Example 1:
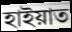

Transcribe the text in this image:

হাইয়াত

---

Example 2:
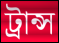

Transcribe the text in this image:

ট্রান্স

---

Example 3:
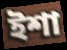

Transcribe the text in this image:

ইশা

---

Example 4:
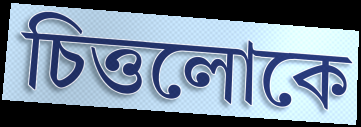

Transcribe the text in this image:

চিত্তলোকে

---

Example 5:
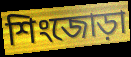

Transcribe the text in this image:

শিংজোড়া